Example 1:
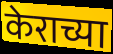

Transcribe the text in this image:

केराच्या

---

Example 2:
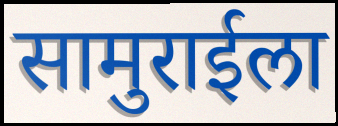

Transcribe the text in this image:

सामुराईला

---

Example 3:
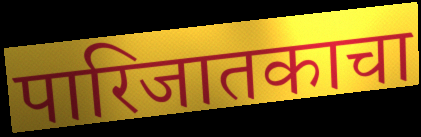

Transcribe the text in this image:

पारिजातकाचा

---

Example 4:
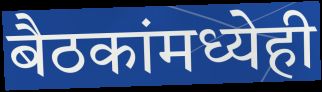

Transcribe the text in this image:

बैठकांमध्येही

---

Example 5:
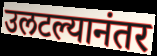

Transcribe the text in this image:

उलटल्यानंतर